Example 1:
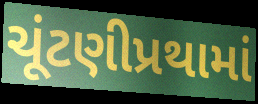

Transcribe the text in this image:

ચૂંટણીપ્રથામાં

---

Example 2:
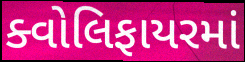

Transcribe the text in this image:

ક્વોલિફાયરમાં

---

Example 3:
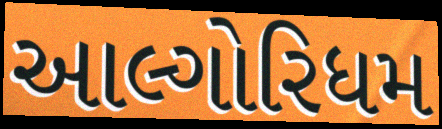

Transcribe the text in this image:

આલ્ગોરિધમ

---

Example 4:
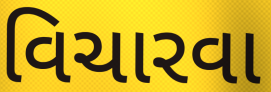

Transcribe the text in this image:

વિચારવા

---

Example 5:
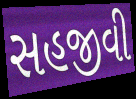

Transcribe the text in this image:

સહજીવી